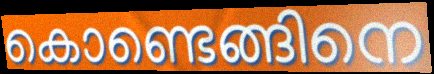
കൊണ്ടെങ്ങിനെ